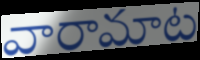
వారామాట